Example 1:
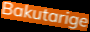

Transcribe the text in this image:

Bakutarige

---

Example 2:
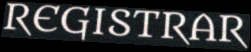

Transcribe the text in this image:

REGISTRAR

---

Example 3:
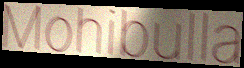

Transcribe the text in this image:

Mohibulla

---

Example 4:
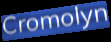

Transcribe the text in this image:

Cromolyn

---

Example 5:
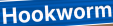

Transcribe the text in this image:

Hookworm